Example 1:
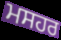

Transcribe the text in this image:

ਮਸਹਰ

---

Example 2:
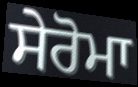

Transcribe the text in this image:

ਸੇਰੋਮਾ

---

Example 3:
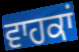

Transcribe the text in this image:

ਵਾਹਕਾਂ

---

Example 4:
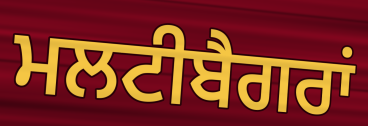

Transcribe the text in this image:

ਮਲਟੀਬੈਗਰਾਂ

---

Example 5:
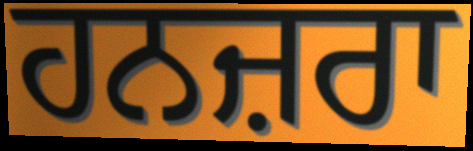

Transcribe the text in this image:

ਹਨਜ਼ਰਾ